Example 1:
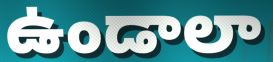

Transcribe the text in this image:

ఉండాలా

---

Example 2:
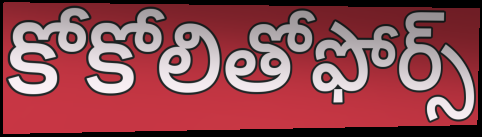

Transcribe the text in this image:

కోకోలితోఫోర్స్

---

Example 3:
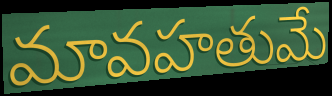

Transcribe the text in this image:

మావహతుమే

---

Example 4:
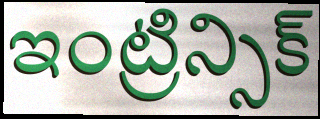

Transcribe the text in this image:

ఇంట్రిన్సిక్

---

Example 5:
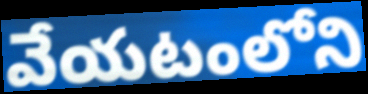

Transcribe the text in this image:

వేయటంలోని